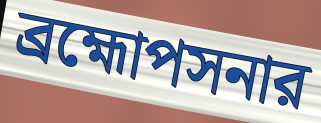
ব্রহ্মোপসনার